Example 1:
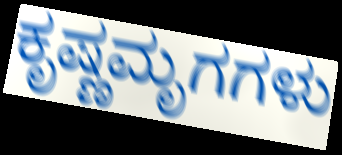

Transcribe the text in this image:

ಕೃಷ್ಣಮೃಗಗಳು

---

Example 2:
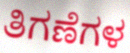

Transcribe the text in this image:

ತಿಗಣೆಗಳ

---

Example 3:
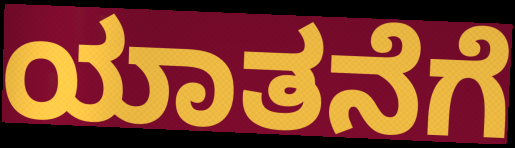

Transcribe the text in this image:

ಯಾತನೆಗೆ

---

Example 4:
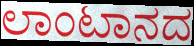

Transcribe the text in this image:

ಲಾಂಟಾನದ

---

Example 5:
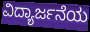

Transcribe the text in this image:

ವಿದ್ಯಾರ್ಜನೆಯ